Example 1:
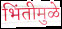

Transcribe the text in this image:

भिंतीमुळे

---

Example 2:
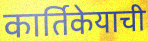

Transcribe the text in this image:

कार्तिकेयाची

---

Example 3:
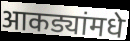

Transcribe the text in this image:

आकड्यांमधे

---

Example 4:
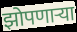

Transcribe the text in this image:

झोपणाऱ्या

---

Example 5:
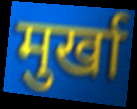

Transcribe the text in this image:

मुर्खा